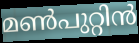
മൺപുറ്റിൻ